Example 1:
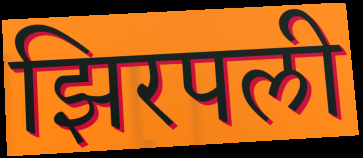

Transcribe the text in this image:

झिरपली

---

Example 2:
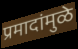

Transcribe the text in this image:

प्रमादांमुळे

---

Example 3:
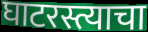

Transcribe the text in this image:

घाटरस्त्याचा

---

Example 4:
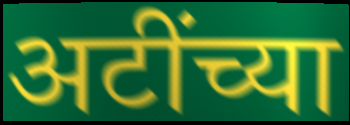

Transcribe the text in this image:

अटींच्या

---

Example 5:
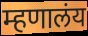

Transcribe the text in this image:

म्हणालंय